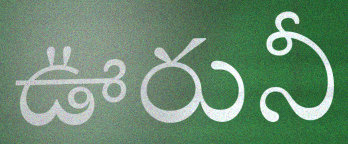
ఊరునీ